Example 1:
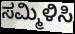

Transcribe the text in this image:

ಸಮ್ಮಿಳಿಸಿ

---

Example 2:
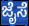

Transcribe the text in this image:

ಜೈಸೆ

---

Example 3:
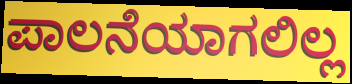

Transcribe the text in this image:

ಪಾಲನೆಯಾಗಲಿಲ್ಲ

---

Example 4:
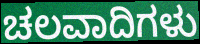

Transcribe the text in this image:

ಚಲವಾದಿಗಳು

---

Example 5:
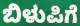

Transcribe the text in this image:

ಬಿಳುಪಿಗೆ